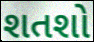
શતશો